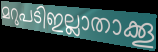
മറുപടിഇല്ലാതാക്കൂ